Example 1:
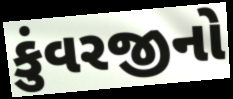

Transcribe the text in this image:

કુંવરજીનો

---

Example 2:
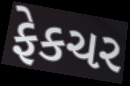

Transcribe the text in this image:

ફેકચર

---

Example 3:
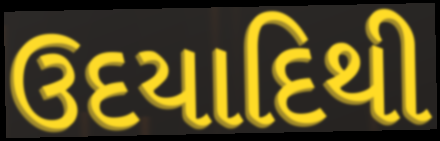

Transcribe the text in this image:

ઉદયાદિથી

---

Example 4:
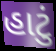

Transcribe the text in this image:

હાટું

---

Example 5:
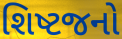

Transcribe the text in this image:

શિષ્ટજનો